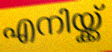
എനിയ്ക്ക്